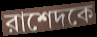
রাশেদকে